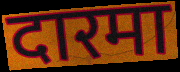
दारमा